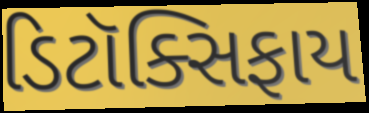
ડિટૉક્સિફાય